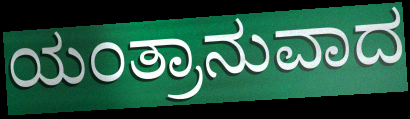
ಯಂತ್ರಾನುವಾದ